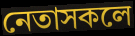
নেতাসকলে